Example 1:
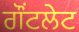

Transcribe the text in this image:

ਗੌਂਟਲੇਟ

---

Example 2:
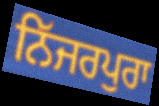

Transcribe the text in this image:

ਨਿੱਜਰਪੁਰਾ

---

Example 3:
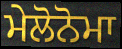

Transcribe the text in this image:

ਮੇਲੋਨੋਮਾ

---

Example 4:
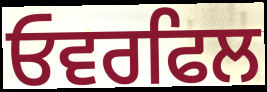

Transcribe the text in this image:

ਓਵਰਫਿਲ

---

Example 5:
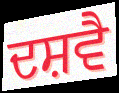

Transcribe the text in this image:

ਦਸ਼ਵੈ